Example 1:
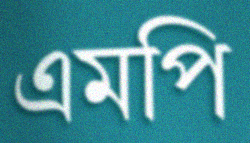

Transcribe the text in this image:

এমপি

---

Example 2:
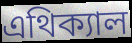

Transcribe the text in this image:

এথিক্যাল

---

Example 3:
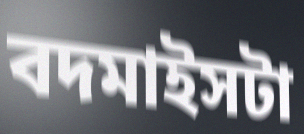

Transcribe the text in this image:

বদমাইসটা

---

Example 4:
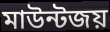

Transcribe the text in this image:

মাউন্টজয়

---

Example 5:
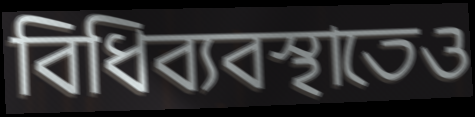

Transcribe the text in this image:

বিধিব্যবস্থাতেও